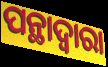
ପନ୍ଥାଦ୍ୱାରା